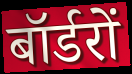
बॉर्डरों